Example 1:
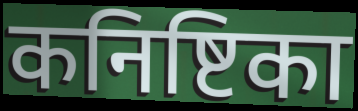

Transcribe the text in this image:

कनिष्टिका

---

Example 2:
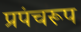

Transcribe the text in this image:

प्रपंचरूप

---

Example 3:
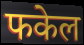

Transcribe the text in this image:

फकेल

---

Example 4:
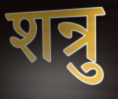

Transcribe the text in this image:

शन्रु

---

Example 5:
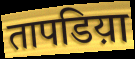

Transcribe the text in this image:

तापडिय़ा